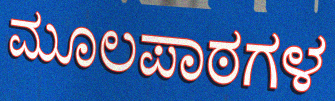
ಮೂಲಪಾಠಗಳ